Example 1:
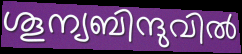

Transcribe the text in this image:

ശൂന്യബിന്ദുവിൽ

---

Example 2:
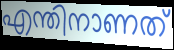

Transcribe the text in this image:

എന്തിനാണത്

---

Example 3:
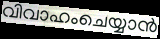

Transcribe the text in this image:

വിവാഹംചെയ്യാൻ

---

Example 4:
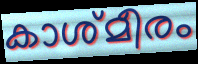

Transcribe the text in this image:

കാശ്മീരം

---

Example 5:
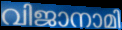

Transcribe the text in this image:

വിജാനാമി